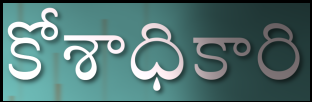
కోశాధికారి